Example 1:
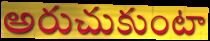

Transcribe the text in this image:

అరుచుకుంటా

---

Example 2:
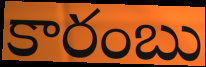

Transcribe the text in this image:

కారంబు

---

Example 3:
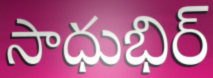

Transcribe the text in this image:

సాధుభిర్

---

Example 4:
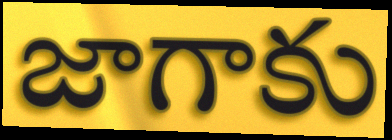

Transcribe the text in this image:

జాగాకు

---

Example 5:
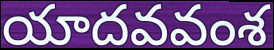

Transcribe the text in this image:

యాదవవంశ